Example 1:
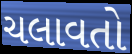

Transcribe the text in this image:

ચલાવતો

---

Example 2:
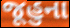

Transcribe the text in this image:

જૂહુના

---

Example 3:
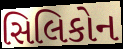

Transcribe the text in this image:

સિલિકોન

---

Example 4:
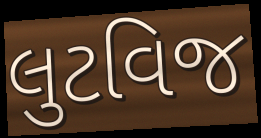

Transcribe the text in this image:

લુટવિજ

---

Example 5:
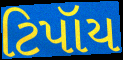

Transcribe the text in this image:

ટિપૉય